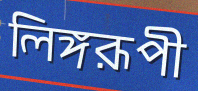
লিঙ্গরূপী